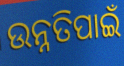
ଉନ୍ନତିପାଇଁ